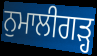
ਨੁਮਾਲੀਗੜ੍ਹ